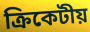
ক্রিকেটীয়